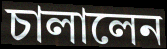
চালালেন